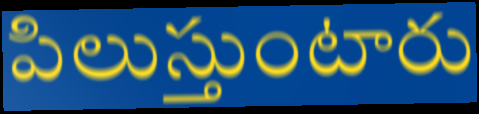
పిలుస్తుంటారు